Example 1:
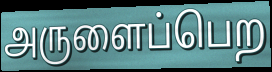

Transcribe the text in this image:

அருளைப்பெற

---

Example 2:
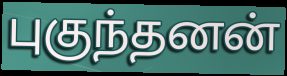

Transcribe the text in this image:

புகுந்தனன்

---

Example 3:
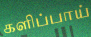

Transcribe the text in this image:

களிப்பாய்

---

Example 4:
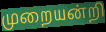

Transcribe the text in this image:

முறையன்றி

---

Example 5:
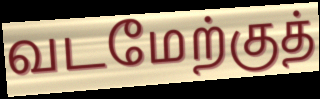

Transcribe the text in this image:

வடமேற்குத்